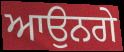
ਆਉਨਗੇ